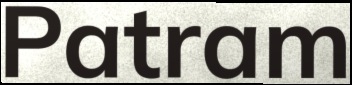
Patram